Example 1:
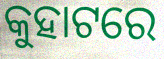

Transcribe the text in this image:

କୁହାଟରେ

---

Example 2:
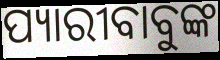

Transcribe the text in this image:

ପ୍ୟାରୀବାବୁଙ୍କ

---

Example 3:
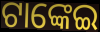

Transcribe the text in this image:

ଟାଙ୍କେଇ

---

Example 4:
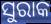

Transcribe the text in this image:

ସୁରାକ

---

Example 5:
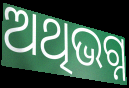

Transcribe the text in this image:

ଅଥିଭଗ୍ନ